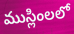
ముస్లింలలో